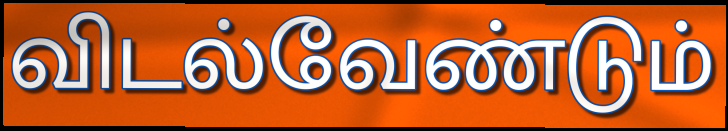
விடல்வேண்டும்